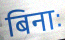
बिनाः